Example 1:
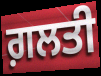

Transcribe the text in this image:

ਗ਼ਲਤੀ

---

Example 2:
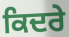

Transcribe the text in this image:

ਕਿਦਰੇ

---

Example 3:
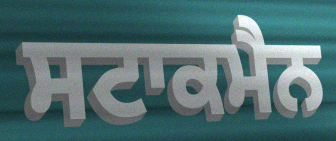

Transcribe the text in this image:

ਸਟਾਕਮੈਨ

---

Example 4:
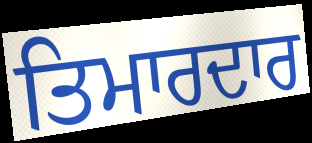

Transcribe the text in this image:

ਤਿਮਾਰਦਾਰ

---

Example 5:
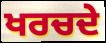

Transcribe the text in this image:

ਖਰਚਦੇ